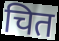
चित